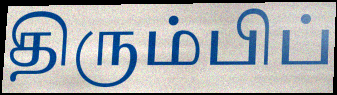
திரும்பிப்